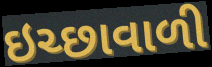
ઇચ્છાવાળી